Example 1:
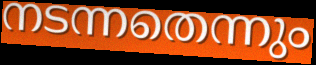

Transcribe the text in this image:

നടന്നതെന്നും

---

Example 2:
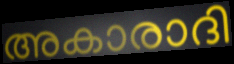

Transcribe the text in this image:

അകാരാദി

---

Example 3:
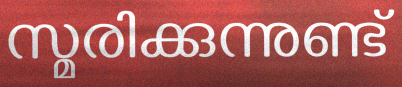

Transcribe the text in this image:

സ്മരിക്കുന്നുണ്ട്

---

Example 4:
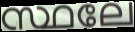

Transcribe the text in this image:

സ്ഥലേ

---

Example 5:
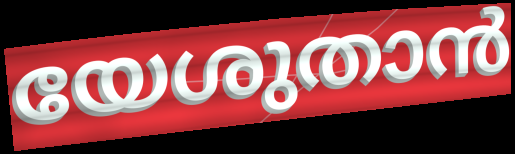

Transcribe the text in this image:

യേശുതാൻ